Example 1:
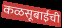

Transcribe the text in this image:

कळसूबाईची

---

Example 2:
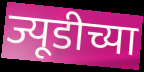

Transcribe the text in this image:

ज्यूडीच्या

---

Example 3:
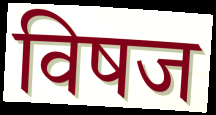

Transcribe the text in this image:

विषज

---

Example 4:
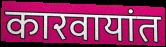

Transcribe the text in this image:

कारवायांत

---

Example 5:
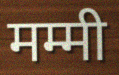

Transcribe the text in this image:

मम्मी